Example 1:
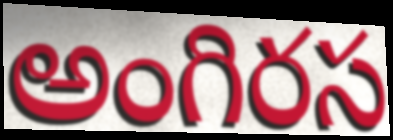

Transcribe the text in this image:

అంగిరస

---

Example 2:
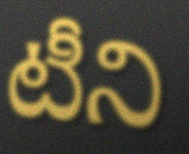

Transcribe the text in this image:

టీని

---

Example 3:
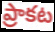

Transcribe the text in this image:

ప్రాకట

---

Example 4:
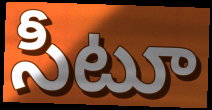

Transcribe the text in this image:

సీటూ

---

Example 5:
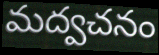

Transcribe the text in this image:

మద్వచనం